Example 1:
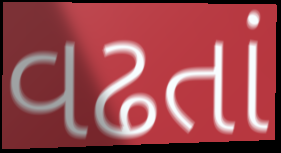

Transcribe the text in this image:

વઢતાં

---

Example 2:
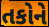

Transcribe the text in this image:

તકોને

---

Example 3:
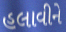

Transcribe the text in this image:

હલાવીને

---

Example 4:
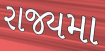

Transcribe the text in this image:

રાજ્યમા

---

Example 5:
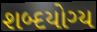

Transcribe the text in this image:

શબ્દયોગ્ય